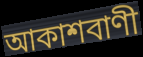
আকাশবাণী